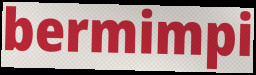
bermimpi